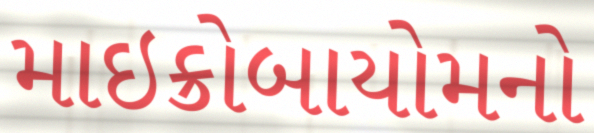
માઇક્રોબાયોમનો